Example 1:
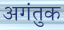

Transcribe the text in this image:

अगंतुक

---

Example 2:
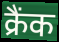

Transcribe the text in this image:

क्रैंक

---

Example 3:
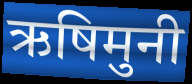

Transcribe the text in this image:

ऋषिमुनी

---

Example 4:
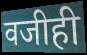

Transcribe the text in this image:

वजीही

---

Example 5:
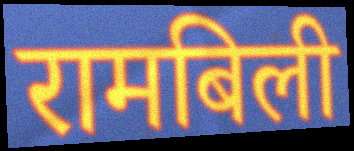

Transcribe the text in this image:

रामबिली